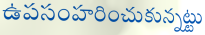
ఉపసంహరించుకున్నట్టు